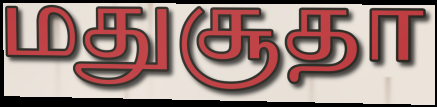
மதுசூதா